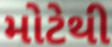
મોટેથી